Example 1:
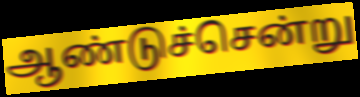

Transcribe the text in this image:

ஆண்டுச்சென்று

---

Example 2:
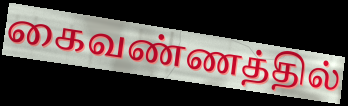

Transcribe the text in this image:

கைவண்ணத்தில்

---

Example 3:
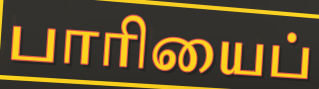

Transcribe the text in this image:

பாரியைப்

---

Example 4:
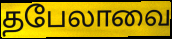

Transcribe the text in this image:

தபேலாவை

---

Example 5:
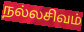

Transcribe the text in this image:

நல்லசிவம்